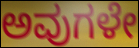
ಅವುಗಳೇ